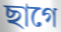
ছাগে